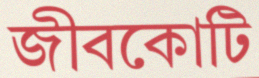
জীবকোটি